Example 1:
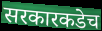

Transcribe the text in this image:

सरकारकडेच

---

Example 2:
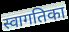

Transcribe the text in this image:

स्वागतिका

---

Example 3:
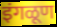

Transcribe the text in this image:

इंगळूण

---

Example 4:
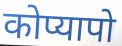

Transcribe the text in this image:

कोप्यापो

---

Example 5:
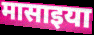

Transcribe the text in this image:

मासाइया